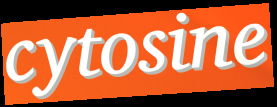
cytosine